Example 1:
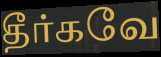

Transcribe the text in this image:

தீர்கவே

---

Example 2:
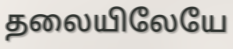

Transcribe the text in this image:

தலையிலேயே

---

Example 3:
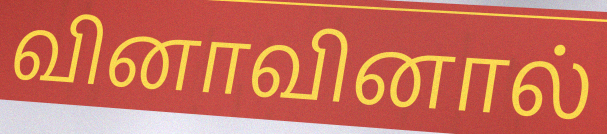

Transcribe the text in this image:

வினாவினால்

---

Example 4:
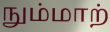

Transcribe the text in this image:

நும்மாற்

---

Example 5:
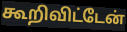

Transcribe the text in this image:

கூறிவிட்டேன்